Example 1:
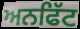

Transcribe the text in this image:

ਅਨਫਿੱਟ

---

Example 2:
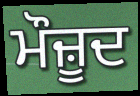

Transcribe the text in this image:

ਮੌਜ਼ੂਦ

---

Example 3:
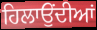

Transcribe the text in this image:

ਹਿਲਾਉਂਦੀਆਂ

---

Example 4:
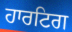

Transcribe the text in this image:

ਹਾਰਟਿਗ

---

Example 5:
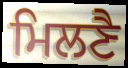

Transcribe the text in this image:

ਮਿਲਣੈ